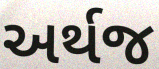
અર્થજ